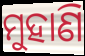
ମୁହାଣି